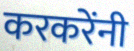
करकरेंनी